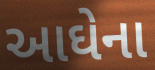
આઘેના